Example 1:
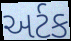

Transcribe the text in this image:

અર્ટક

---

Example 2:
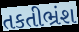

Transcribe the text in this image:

તકતીભ્રંશ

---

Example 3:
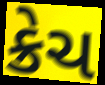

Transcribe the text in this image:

ક્રેચ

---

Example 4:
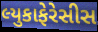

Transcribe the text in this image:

લ્યુકાફેરેસીસ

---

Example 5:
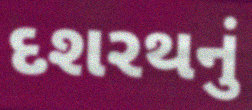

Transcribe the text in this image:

દશરથનું